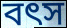
বৎস